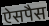
ऐसपैस